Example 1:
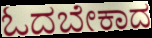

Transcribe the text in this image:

ಓದಬೇಕಾದ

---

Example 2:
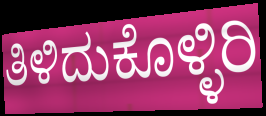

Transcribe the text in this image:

ತಿಳಿದುಕೊಳ್ಳಿರಿ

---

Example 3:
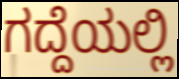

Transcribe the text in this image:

ಗದ್ದೆಯಲ್ಲಿ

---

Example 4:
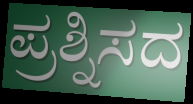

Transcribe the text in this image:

ಪ್ರಶ್ನಿಸದ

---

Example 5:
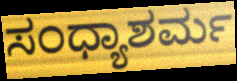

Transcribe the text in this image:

ಸಂಧ್ಯಾಶರ್ಮ